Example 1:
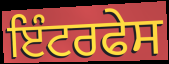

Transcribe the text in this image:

ਇੰਟਰਫੇਸ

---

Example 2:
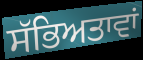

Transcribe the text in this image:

ਸੱਭਿਅਤਾਵਾਂ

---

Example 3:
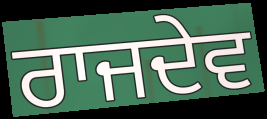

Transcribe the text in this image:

ਰਾਜਦੇਵ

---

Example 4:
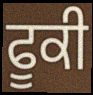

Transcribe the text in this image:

ਫੂਕੀ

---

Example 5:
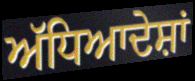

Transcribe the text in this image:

ਅੱਧਿਆਦੇਸ਼ਾਂ